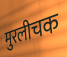
मुरलीचक